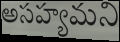
అసహ్యమని